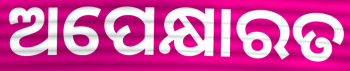
ଅପେକ୍ଷାରତ